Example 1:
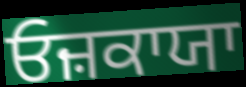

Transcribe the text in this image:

ਓਜ਼ਕਾਯਾ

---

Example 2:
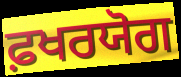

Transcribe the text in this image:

ਫ਼ਖਰਯੋਗ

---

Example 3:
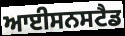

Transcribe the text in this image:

ਆਈਸਨਸਟੈਡ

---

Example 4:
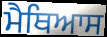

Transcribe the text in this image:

ਮੈਥਿਆਸ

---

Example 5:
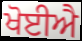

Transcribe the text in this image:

ਖੋਈਐ